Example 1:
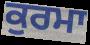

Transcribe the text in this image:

ਕੁਰਮਾ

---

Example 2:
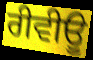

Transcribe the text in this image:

ਰੀਵੀਊ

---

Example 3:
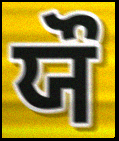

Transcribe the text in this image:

ਯੌ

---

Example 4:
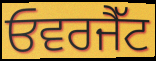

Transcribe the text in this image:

ਓਵਰਜੈੱਟ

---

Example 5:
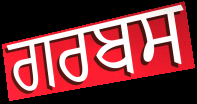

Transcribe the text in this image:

ਗਰਬਸ